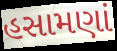
હસામણાં